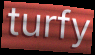
turfy